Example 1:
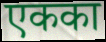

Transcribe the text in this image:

एकका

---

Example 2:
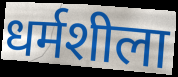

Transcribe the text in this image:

धर्मशीला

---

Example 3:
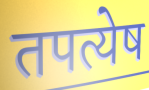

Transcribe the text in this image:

तपत्येष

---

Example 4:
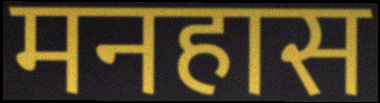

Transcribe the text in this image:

मनहास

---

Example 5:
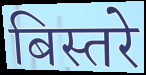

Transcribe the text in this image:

बिस्तरे